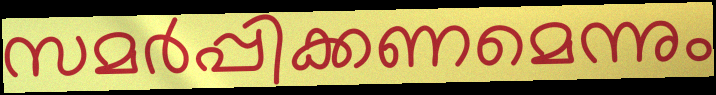
സമർപ്പിക്കണമെന്നും